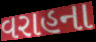
વરાહના